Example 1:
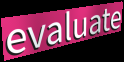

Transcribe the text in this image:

evaluate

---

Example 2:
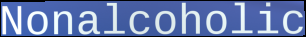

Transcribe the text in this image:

Nonalcoholic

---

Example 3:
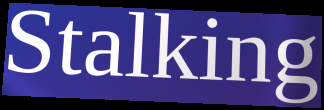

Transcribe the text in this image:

Stalking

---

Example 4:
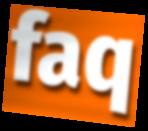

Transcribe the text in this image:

faq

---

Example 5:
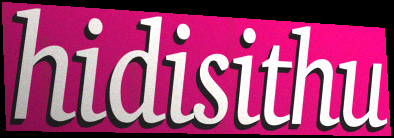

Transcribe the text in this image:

hidisithu